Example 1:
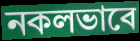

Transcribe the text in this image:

নকলভাবে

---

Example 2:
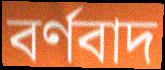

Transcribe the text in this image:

বর্ণবাদ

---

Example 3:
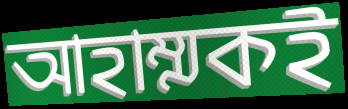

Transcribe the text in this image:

আহাম্মকই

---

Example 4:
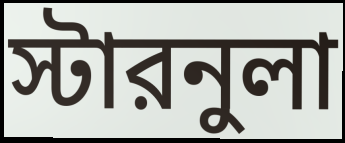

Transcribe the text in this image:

স্টারনুলা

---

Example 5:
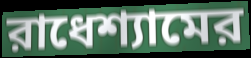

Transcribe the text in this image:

রাধেশ্যামের